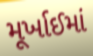
મૂર્ખાઈમાં